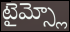
టైమ్స్లో